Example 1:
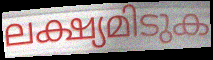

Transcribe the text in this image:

ലക്ഷ്യമിടുക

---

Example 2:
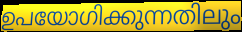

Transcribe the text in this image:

ഉപയോഗിക്കുന്നതിലും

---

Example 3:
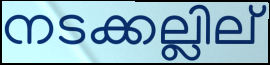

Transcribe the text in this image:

നടക്കല്ലില്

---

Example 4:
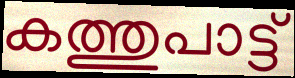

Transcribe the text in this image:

കത്തുപാട്ട്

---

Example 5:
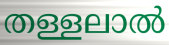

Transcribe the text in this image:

തള്ളലാൽ